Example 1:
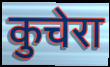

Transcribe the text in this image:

कुचेरा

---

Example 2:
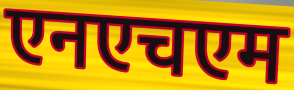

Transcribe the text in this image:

एनएचएम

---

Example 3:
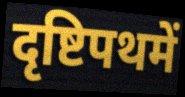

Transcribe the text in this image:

दृष्टिपथमें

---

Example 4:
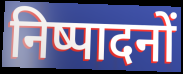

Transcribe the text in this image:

निष्पादनों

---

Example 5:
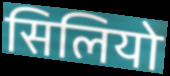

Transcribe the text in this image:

सिलियो